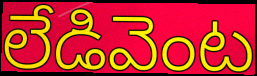
లేడివెంట